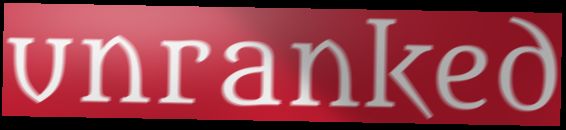
unranked